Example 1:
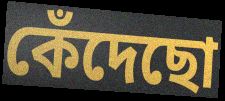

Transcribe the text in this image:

কেঁদেছো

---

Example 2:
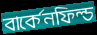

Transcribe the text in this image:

বার্কেনফিল্ড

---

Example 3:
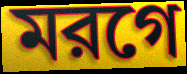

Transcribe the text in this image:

মরগে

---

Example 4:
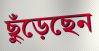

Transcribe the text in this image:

ছুঁড়েছেন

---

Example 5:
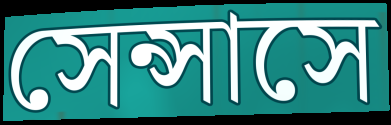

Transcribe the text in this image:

সেন্সাসে